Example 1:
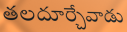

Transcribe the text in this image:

తలదూర్చేవాడు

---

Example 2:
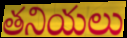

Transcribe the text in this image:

తనియలు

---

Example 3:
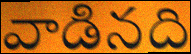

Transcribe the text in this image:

వాడినది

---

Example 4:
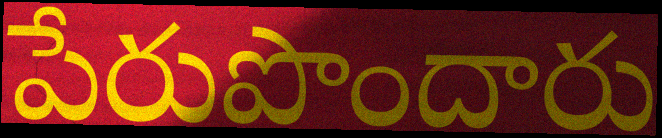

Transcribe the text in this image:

పేరుపొందారు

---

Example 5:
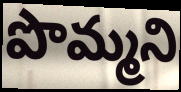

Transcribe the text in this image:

పొమ్మని